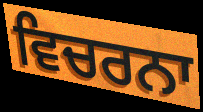
ਵਿਚਰਨਾ